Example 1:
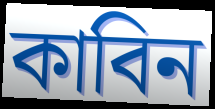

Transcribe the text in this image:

কাবিন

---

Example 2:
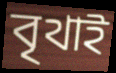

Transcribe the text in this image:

বৃথাই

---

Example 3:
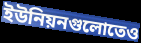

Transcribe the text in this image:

ইউনিয়নগুলোতেও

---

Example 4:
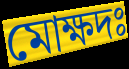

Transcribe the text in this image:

মোক্ষদঃ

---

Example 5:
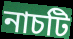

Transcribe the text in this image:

নাচটি